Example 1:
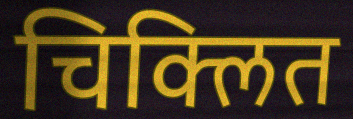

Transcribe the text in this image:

चिक्लित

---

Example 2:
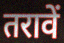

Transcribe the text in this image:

तरावें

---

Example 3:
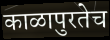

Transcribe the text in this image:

काळापुरतेच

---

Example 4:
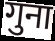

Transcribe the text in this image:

गुना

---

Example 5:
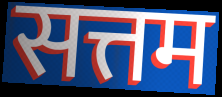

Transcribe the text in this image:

सत्तम